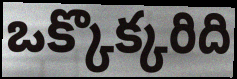
ఒక్కొక్కరిది